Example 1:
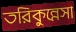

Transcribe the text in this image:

তরিকুন্নেসা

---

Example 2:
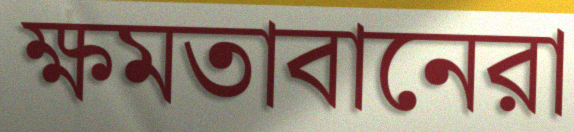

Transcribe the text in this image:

ক্ষমতাবানেরা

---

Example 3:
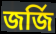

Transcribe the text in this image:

জর্জি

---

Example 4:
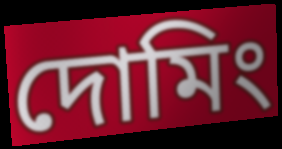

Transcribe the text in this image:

দোমিং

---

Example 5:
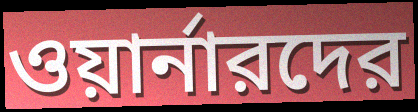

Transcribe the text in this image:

ওয়ার্নারদের